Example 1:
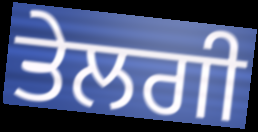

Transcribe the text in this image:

ਤੇਲਗੀ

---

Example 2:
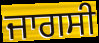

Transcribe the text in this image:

ਜਾਗਸੀ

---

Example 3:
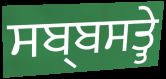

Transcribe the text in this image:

ਸਬ੍ਬਸਤ੍ਤੇ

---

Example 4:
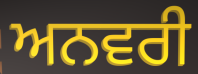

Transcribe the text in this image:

ਅਨਵਰੀ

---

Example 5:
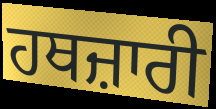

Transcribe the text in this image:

ਹਥਜ਼ਾਰੀ